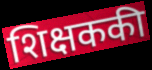
शिक्षककी